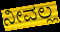
ನೀವಲ್ಲ